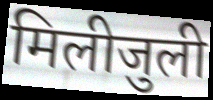
मिलीजुली